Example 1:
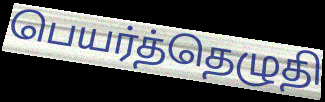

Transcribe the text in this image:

பெயர்த்தெழுதி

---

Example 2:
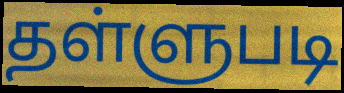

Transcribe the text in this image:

தள்ளுபடி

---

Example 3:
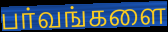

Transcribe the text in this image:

பர்வங்களை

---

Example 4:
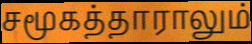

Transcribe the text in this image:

சமூகத்தாராலும்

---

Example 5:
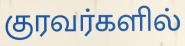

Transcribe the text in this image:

குரவர்களில்